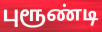
புரூண்டி